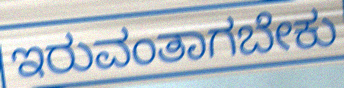
ಇರುವಂತಾಗಬೇಕು